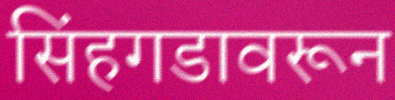
सिंहगडावरून